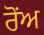
ਰੋਂਅ